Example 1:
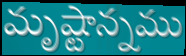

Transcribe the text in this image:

మృష్టాన్నము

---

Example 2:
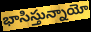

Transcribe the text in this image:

భాసిస్తున్నాయో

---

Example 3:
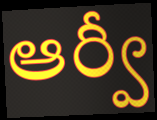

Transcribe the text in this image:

ఆర్వీ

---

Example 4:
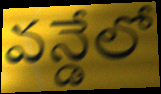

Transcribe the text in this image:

వన్డేలో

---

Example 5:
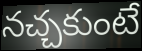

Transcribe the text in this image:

నచ్చకుంటే